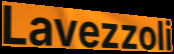
Lavezzoli